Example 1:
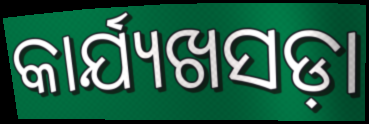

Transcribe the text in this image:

କାର୍ଯ୍ୟଖସଡ଼ା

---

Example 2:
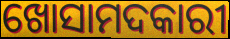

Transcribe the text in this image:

ଖୋସାମଦକାରୀ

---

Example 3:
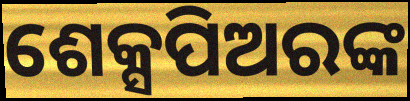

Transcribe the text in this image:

ଶେକ୍ସପିଅରଙ୍କ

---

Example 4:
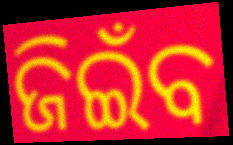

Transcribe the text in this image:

ଜିଇଁବ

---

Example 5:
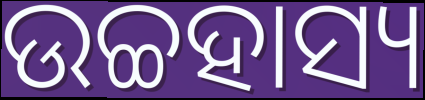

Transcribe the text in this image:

ଉଚ୍ଚହାସ୍ୟ